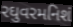
રઘુવરમનિશં